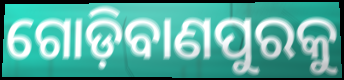
ଗୋଡ଼ିବାଣପୁରକୁ